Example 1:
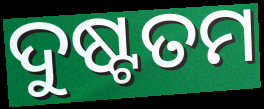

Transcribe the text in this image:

ଦୁଷ୍ଟତମ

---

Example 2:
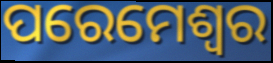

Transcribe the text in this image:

ପରେମେଶ୍ଵର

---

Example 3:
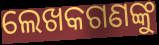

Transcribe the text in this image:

ଲେଖକଗଣଙ୍କୁ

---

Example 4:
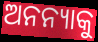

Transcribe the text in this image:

ଅନନ୍ୟାକୁ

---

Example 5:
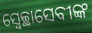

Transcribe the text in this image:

ସ୍ୱେଚ୍ଛାସେବୀଙ୍କ